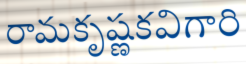
రామకృష్ణకవిగారి